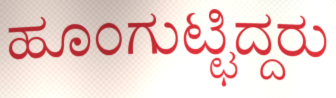
ಹೂಂಗುಟ್ಟಿದ್ದರು